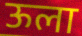
ऊला